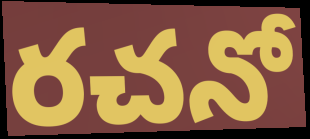
రచనో